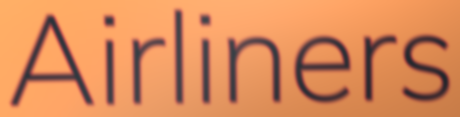
Airliners